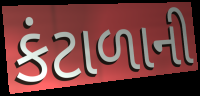
કંટાળાની